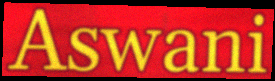
Aswani